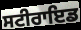
ਸਟੀਰਾਇਡ